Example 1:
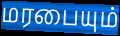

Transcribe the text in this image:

மரபையும்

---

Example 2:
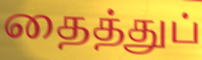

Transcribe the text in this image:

தைத்துப்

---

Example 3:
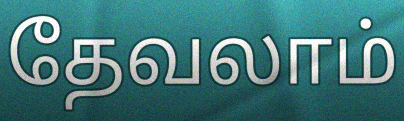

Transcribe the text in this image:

தேவலாம்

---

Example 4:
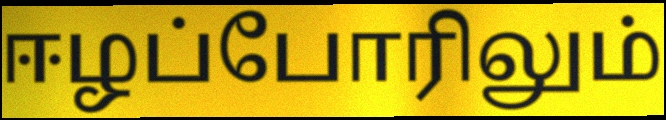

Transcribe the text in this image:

ஈழப்போரிலும்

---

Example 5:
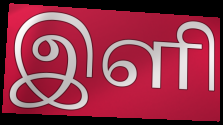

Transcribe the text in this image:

இளி